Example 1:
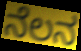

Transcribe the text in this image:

ನೆಲನ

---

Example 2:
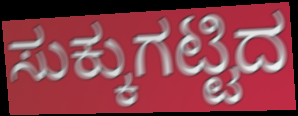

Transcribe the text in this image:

ಸುಕ್ಕುಗಟ್ಟಿದ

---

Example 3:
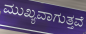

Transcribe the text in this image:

ಮುಖ್ಯವಾಗುತ್ತವೆ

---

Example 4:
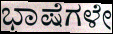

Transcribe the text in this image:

ಭಾಷೆಗಳೇ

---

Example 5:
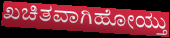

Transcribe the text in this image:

ಖಚಿತವಾಗಿಹೋಯ್ತು